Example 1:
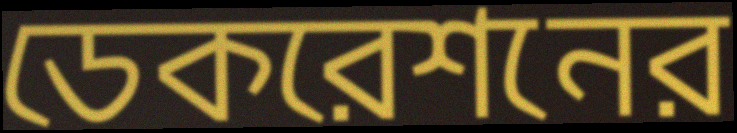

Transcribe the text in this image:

ডেকরেশনের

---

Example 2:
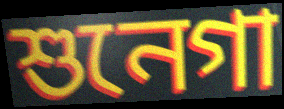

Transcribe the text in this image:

শুনেগা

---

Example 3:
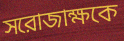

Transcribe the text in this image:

সরোজাক্ষকে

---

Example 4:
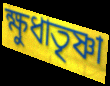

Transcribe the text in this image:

ক্ষুধাতৃষ্ণা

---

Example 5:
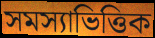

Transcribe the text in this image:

সমস্যাভিত্তিক